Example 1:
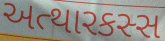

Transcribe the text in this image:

અત્થારકસ્સ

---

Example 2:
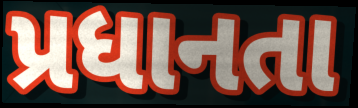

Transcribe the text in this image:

પ્રધાનતા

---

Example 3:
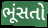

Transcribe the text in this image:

ભૂંસતો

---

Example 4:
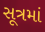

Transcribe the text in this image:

સૂત્રમાં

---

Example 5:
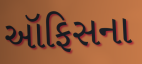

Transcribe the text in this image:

ઑફિસના